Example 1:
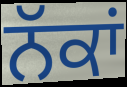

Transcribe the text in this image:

ਨੱਕਾਂ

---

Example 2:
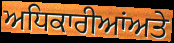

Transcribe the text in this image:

ਅਧਿਕਾਰੀਆਂਅਤੇ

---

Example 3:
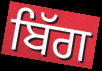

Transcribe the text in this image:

ਬਿੱਗ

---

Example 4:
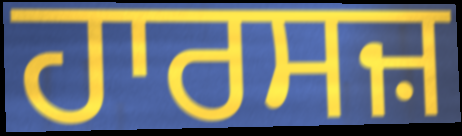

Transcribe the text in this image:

ਹਾਰਸਜ਼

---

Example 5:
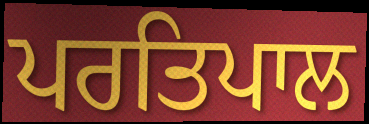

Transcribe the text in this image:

ਪਰਤਿਪਾਲ